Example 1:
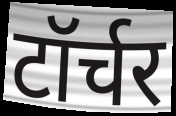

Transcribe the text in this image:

टॉर्चर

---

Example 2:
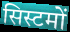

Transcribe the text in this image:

सिस्टमों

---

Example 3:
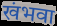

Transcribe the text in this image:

खंभवा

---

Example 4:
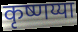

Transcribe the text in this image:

कृष्णय्या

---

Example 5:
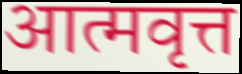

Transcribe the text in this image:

आत्मवृत्त